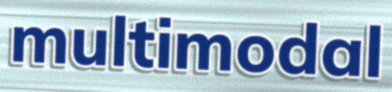
multimodal